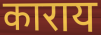
काराय